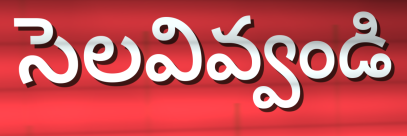
సెలవివ్వండి